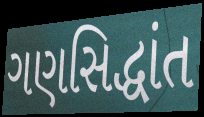
ગણસિદ્ધાંત